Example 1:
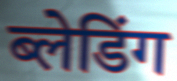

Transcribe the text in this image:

ब्लेडिंग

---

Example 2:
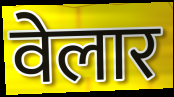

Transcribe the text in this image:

वेलार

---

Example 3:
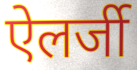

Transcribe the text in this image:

ऐलर्जी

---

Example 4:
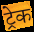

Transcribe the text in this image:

ट्रेक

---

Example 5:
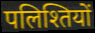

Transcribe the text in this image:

पलिश्तियों